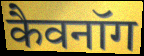
कैवनॉग